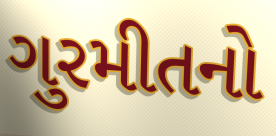
ગુરમીતનો